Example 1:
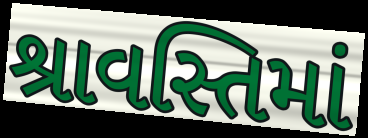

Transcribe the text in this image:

શ્રાવસ્તિમાં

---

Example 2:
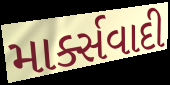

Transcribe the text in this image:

માર્ક્સવાદી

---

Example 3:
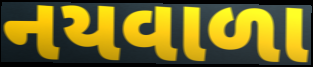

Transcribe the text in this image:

નયવાળા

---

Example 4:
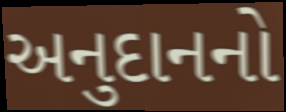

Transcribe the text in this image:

અનુદાનનો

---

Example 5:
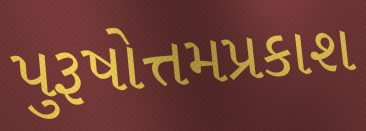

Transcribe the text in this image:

પુરૂષોત્તમપ્રકાશ